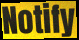
Notify